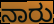
ನಾರು